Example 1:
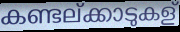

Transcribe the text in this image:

കണ്ടല്ക്കാടുകള്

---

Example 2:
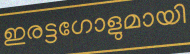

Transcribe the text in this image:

ഇരട്ടഗോളുമായി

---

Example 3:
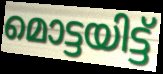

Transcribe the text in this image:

മൊട്ടയിട്ട്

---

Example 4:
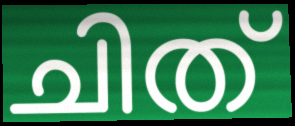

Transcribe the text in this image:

ചിത്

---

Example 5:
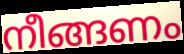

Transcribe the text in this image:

നീങ്ങണം